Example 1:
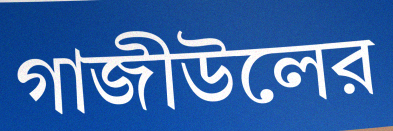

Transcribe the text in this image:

গাজীউলের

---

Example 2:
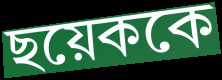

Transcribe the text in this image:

ছয়েককে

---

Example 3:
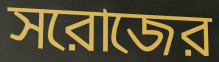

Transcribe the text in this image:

সরোজের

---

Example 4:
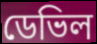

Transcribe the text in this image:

ডেভিল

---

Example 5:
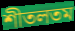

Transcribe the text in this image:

শীতলতম